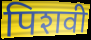
पिशवी